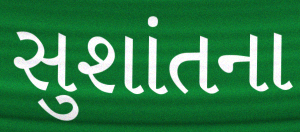
સુશાંતના